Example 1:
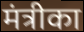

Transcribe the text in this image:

मंत्रीका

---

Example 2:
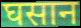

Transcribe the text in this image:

घसान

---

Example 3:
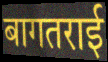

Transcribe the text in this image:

बागतराई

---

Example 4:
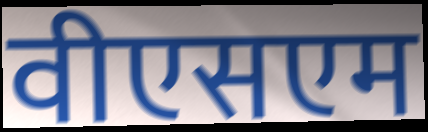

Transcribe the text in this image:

वीएसएम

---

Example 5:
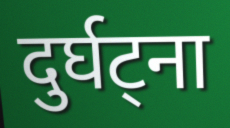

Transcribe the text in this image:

दुर्घट्ना